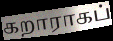
கறாராகப்